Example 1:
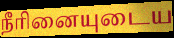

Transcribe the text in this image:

நீரினையுடைய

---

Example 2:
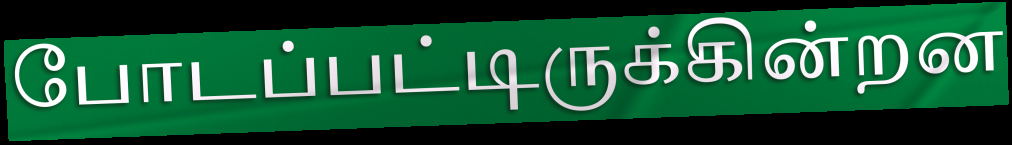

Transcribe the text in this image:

போடப்பட்டிருக்கின்றன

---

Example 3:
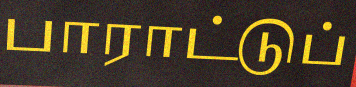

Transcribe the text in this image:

பாராட்டுப்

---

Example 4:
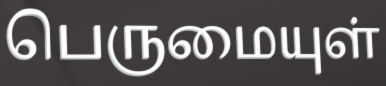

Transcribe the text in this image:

பெருமையுள்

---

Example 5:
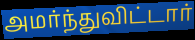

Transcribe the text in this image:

அமர்ந்துவிட்டார்